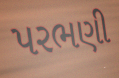
પરભણી